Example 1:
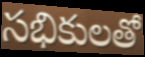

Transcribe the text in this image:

సభికులతో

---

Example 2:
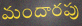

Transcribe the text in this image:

మందారపు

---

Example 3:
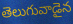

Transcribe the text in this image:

తెలుగువాడైన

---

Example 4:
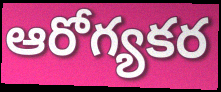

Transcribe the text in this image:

ఆరోగ్యకర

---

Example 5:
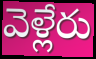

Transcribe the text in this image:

వెళ్లేరు